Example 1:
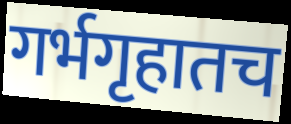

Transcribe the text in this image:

गर्भगृहातच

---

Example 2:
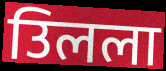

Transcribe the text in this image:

उिलला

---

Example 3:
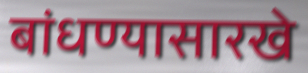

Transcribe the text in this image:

बांधण्यासारखे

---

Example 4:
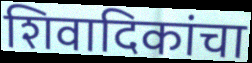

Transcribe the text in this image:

शिवादिकांचा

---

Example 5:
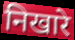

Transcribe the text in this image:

निखारे